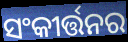
ସଂକୀର୍ତ୍ତନର